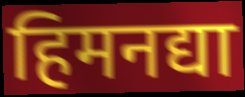
हिमनद्या